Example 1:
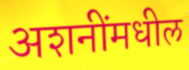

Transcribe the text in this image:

अशनींमधील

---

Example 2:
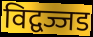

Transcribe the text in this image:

विद्वज्जड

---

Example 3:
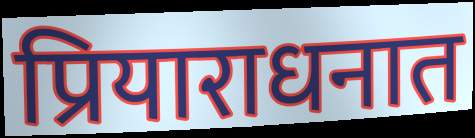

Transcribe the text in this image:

प्रियाराधनात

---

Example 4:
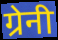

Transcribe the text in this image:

ग्रेनी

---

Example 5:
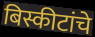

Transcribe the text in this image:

बिस्कीटांचे